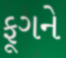
ફૂગને